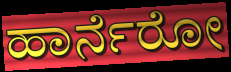
ಹಾರ್ನೆರೋ